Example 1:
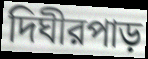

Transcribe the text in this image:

দিঘীরপাড়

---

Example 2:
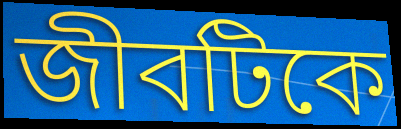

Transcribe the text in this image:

জীবটিকে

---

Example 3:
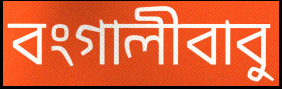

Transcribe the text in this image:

বংগালীবাবু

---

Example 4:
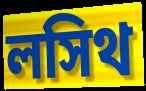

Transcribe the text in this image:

লসিথ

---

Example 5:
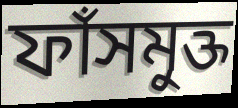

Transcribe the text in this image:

ফাঁসমুক্ত